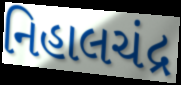
નિહાલચંદ્ર